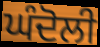
ਘੰਦੋਲੀ